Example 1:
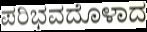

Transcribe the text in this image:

ಪರಿಭವದೊಳಾದ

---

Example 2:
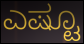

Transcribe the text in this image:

ಎಷ್ಟೂ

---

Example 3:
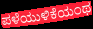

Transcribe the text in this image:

ಪಳೆಯುಳಿಕೆಯಂಥ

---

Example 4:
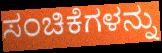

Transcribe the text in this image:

ಸಂಚಿಕೆಗಳನ್ನು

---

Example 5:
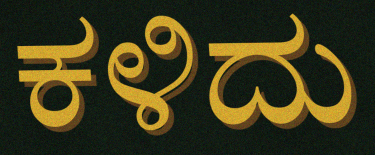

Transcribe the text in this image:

ಕಳಿದು